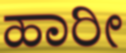
ಹಾರೀ